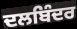
ਦਲਬਿੰਦਰ